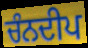
ਚੰਨਦੀਪ